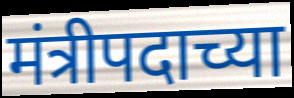
मंत्रीपदाच्या